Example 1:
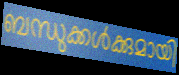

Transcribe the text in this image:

ബന്ധുക്കൾക്കുമായി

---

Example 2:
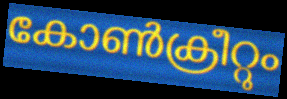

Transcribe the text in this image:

കോൺക്രീറ്റും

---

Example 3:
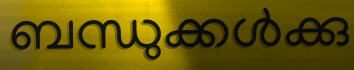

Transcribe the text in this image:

ബന്ധുക്കൾക്കു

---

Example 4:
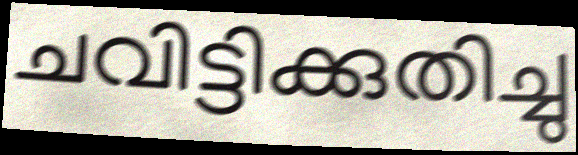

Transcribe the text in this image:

ചവിട്ടിക്കുതിച്ചു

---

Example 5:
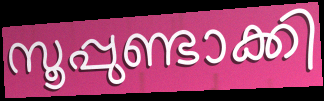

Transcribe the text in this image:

സൂപ്പുണ്ടാക്കി